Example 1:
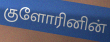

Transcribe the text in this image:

குளோரினின்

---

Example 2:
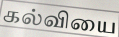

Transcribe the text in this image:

கல்வியை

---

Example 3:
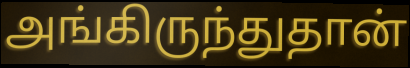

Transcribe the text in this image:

அங்கிருந்துதான்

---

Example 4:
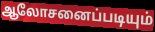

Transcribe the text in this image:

ஆலோசனைப்படியும்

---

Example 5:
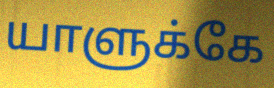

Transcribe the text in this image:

யாளுக்கே